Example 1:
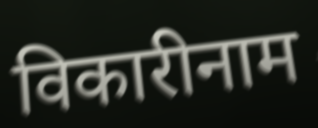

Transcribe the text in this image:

विकारीनाम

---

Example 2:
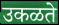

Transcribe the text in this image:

उकळते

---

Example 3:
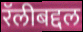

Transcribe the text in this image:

रॅलीबद्दल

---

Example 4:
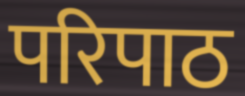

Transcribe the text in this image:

परिपाठ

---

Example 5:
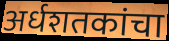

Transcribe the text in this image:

अर्धशतकांचा